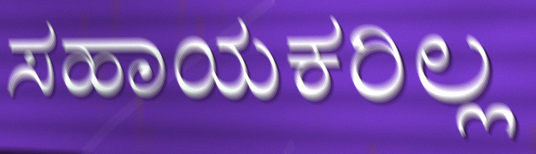
ಸಹಾಯಕರಿಲ್ಲ